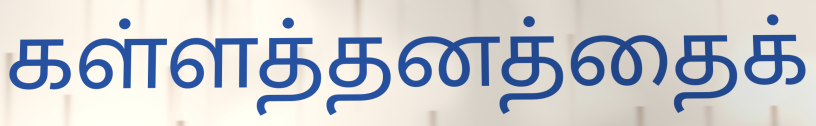
கள்ளத்தனத்தைக்